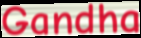
Gandha